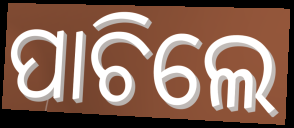
ପାଚିଲେ